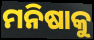
ମନିଷାକୁ